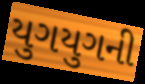
યુગયુગની